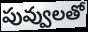
పువ్వులతో